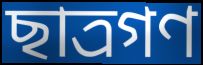
ছাত্রগণ